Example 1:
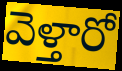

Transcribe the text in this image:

వెళ్తారో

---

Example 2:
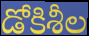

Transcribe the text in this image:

డోకిశీల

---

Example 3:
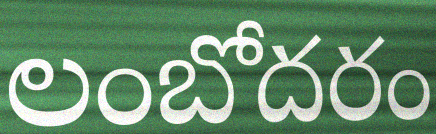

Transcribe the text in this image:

లంబోదరం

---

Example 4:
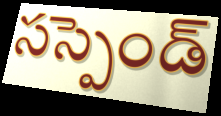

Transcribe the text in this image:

సస్పెండ్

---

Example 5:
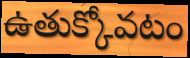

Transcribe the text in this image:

ఉతుక్కోవటం